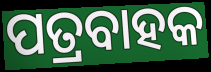
ପତ୍ରବାହକ